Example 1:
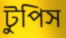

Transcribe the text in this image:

টুপিস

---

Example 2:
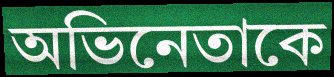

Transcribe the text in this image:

অভিনেতাকে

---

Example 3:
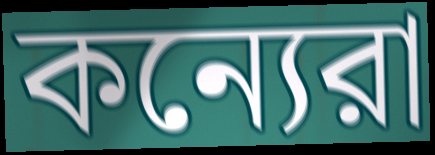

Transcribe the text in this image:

কন্যেরা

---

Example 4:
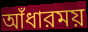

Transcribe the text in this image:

আঁধারময়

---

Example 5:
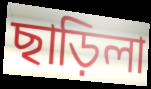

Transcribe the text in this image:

ছাড়িলা